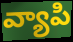
వ్యాపి